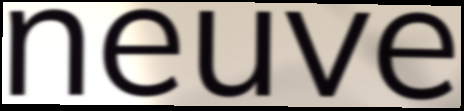
neuve